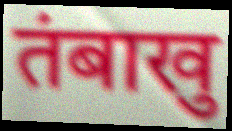
तंबाखु